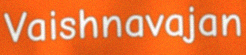
Vaishnavajan